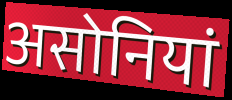
असोनियां